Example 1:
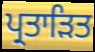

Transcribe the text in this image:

ਪ੍ਰਤਾੜਿਤ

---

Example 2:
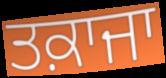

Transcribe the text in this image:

ਤਕ਼ਾਜਾ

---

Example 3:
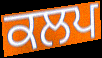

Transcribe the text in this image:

ਕਲਪ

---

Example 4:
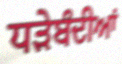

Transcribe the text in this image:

ਧੜੇਬੰਦੀਆਂ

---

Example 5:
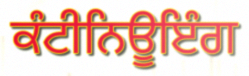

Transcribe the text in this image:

ਕੰਟੀਨਿਊਇੰਗ